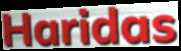
Haridas